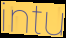
intu